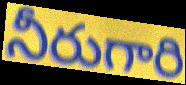
నీరుగారి